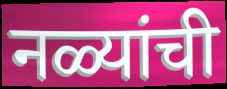
नळ्यांची